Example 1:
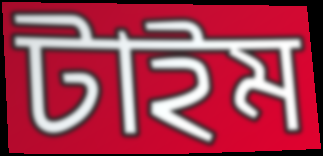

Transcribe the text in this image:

টাইম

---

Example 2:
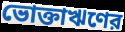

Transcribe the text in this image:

ভোক্তাঋণের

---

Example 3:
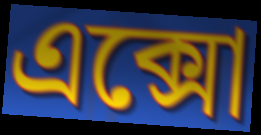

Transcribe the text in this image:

এক্সো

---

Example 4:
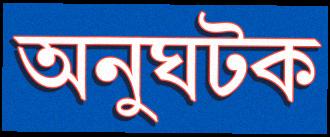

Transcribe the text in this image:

অনুঘটক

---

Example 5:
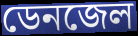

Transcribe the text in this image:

ডেনজেল